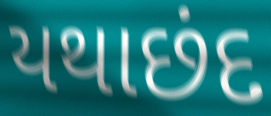
યથાછંદ